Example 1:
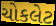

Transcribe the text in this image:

ચોકલેટ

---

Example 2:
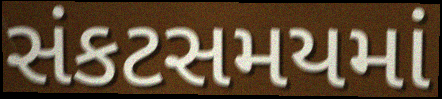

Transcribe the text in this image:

સંકટસમયમાં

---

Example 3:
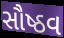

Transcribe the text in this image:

સૌષ્ઠવ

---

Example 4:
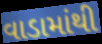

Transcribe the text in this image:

વાડામાંથી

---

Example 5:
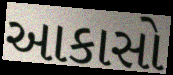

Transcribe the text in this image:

આકાસો